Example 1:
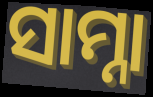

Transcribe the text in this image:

ସାମ୍ନା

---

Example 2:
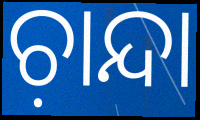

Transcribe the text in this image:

ଚ଼ାନ୍ଦା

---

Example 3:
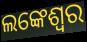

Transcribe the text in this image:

ଲଙ୍କେଶ୍ବର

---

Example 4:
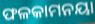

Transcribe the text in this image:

ଫଳକାମନୟା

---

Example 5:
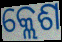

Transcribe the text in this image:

କ୍ଲେଶ